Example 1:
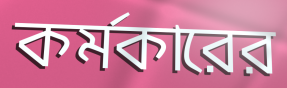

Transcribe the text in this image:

কর্মকারের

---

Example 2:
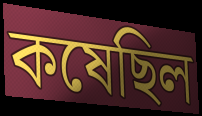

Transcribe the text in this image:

কষেছিল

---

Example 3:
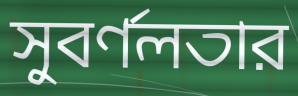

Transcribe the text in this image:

সুবর্ণলতার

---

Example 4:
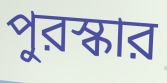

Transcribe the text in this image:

পুরস্কার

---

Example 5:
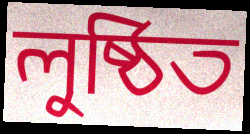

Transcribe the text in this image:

লুষ্ঠিত